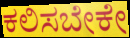
ಕಲಿಸಬೇಕೇ